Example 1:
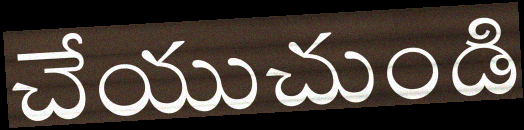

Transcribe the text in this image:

చేయుచుండి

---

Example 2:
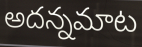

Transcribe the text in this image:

అదన్నమాట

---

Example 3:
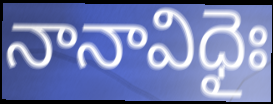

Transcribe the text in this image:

నానావిధైః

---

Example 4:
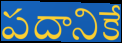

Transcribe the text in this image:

పదానికే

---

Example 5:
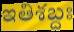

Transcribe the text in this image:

ఇతిశబ్దః